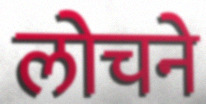
लोचने